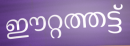
ഈറ്റത്തട്ട്